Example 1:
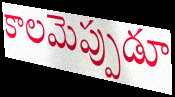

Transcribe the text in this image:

కాలమెప్పుడూ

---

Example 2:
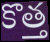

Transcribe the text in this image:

కొత్త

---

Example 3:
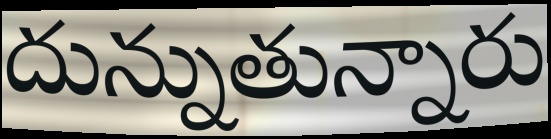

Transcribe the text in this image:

దున్నుతున్నారు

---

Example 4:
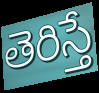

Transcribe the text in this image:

తెరిస్తే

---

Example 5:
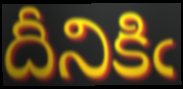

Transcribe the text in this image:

దీనికిఁ